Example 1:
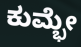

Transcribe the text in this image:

ಕುಮ್ಭೇ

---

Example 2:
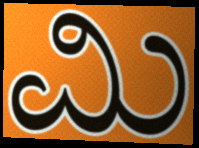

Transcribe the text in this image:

ಮಿ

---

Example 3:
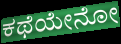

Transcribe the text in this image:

ಕಥೆಯೇನೋ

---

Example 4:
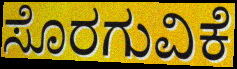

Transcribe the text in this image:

ಸೊರಗುವಿಕೆ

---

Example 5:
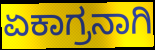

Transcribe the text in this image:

ಏಕಾಗ್ರನಾಗಿ